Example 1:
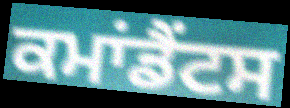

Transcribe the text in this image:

ਕਮਾਂਡੈਂਟਸ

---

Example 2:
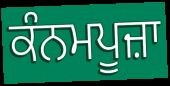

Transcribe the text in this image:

ਕੰਨਮਪੂਜ਼ਾ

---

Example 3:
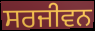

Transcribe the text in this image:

ਸਰਜੀਵਨ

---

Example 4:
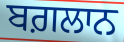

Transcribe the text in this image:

ਬਗ਼ਲਾਨ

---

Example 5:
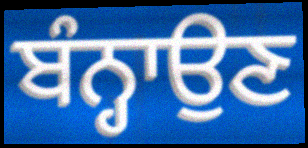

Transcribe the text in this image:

ਬੰਨ੍ਹਾਉਣ